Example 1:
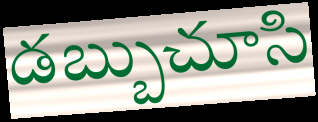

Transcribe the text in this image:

డబ్బుచూసి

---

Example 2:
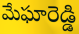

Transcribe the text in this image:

మేఘారెడ్డి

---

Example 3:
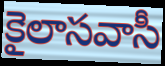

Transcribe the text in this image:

కైలాసవాసీ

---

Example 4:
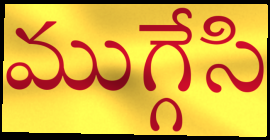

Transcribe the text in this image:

ముగ్గేసి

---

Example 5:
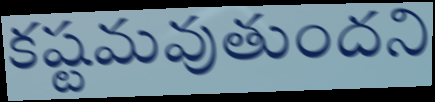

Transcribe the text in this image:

కష్టమవుతుందని